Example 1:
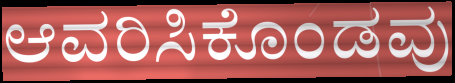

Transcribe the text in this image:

ಆವರಿಸಿಕೊಂಡವು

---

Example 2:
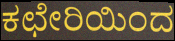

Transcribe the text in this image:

ಕಛೇರಿಯಿಂದ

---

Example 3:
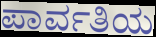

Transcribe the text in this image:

ಪಾರ್ವತಿಯ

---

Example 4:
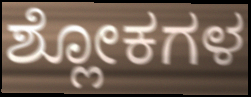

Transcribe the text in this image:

ಶ್ಲೋಕಗಳ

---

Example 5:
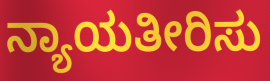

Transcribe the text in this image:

ನ್ಯಾಯತೀರಿಸು